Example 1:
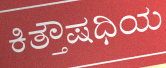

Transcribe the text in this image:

ಕಿತ್ತೌಷಧಿಯ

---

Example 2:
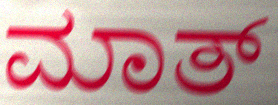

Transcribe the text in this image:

ಮಾತ್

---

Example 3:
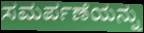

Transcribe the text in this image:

ಸಮರ್ಪಣೆಯನ್ನು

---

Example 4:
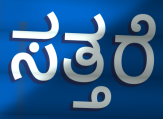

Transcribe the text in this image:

ಸತ್ತರೆ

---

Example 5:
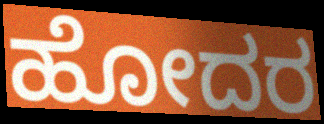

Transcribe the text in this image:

ಹೋದರ